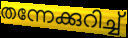
തന്നേക്കുറിച്ച്